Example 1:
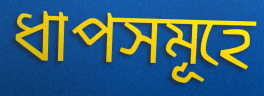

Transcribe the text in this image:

ধাপসমূহে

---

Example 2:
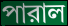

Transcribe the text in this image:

পারাল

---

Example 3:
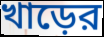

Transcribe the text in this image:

খাড়ের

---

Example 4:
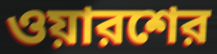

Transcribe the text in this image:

ওয়ারশের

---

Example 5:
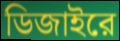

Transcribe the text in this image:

ডিজাইরে